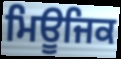
ਮਿਊਜਿਕ